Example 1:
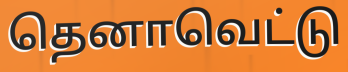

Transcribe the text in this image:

தெனாவெட்டு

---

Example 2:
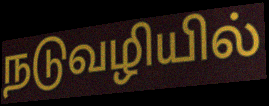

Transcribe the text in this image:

நடுவழியில்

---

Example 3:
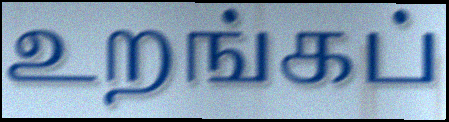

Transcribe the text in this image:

உறங்கப்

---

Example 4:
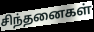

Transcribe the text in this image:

சிந்தனைகள்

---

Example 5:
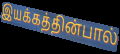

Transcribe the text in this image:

இயக்கத்தின்பால்